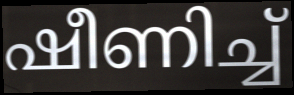
ഷീണിച്ച്